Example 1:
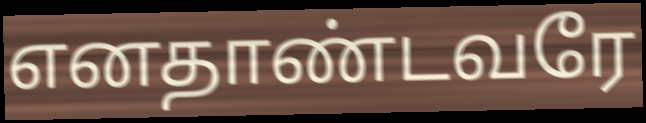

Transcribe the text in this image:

எனதாண்டவரே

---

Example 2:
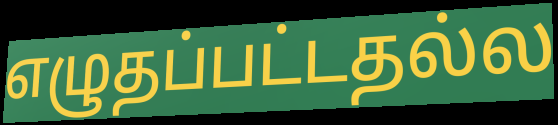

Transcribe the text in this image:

எழுதப்பட்டதல்ல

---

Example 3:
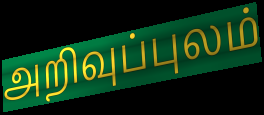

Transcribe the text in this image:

அறிவுப்புலம்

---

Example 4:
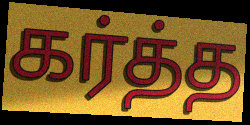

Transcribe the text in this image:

கர்த்த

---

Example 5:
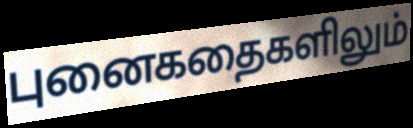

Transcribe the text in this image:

புனைகதைகளிலும்